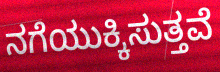
ನಗೆಯುಕ್ಕಿಸುತ್ತವೆ